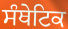
ਸੰਥੇਟਿਕ